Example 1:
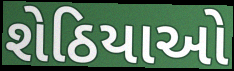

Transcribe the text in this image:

શેઠિયાઓ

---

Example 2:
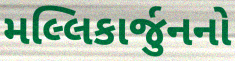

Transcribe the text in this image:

મલ્લિકાર્જુનનો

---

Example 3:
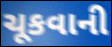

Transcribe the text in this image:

ચૂકવાની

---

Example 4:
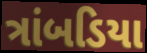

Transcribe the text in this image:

ત્રાંબડિયા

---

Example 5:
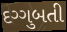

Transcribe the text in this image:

દગ્ગુબતી